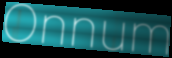
Onnum